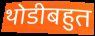
थोडीबहुत